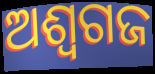
ଅଶ୍ୱଗଜ